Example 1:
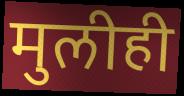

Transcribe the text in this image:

मुलीही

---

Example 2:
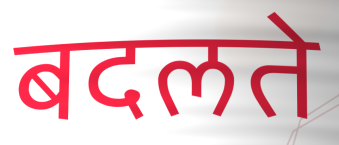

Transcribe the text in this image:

बदलते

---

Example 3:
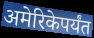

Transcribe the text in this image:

अमेरिकेपर्यंत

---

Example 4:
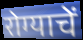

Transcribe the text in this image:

रोग्याचें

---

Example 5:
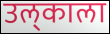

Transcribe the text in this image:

उल्काला